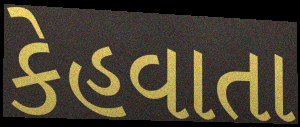
કેહવાતા